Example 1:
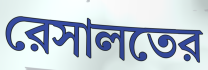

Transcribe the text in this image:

রেসালতের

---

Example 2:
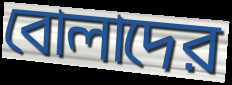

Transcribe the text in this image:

বোলাদের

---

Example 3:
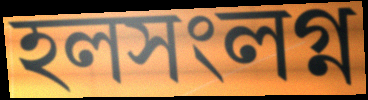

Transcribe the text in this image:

হলসংলগ্ন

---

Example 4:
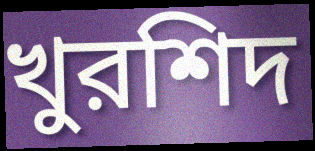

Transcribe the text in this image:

খুরশিদ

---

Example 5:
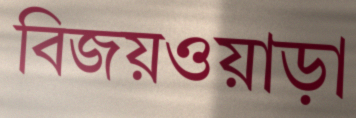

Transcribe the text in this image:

বিজয়ওয়াড়া